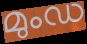
മുംഡ